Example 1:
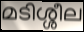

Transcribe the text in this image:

മടിശ്ശീല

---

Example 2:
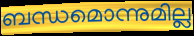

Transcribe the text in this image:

ബന്ധമൊന്നുമില്ല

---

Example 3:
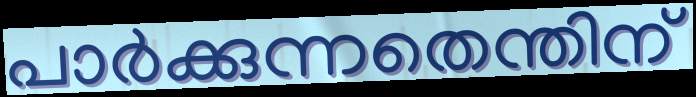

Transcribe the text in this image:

പാർക്കുന്നതെന്തിന്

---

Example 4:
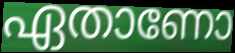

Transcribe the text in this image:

ഏതാണോ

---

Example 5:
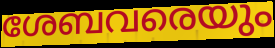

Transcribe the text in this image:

ശേബവരെയും